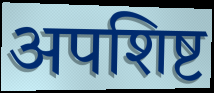
अपशिष्ट